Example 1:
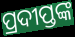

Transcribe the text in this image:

ପ୍ରଦୀପ୍ତଙ୍କ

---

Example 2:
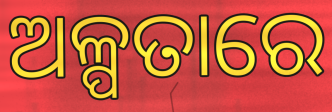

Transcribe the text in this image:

ଅଳ୍ପତାରେ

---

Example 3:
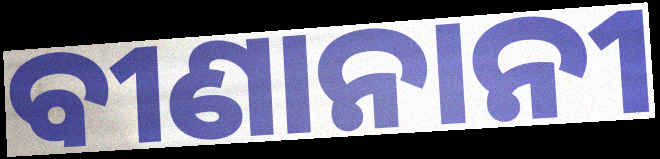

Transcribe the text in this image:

ବୀଣାନାନୀ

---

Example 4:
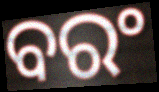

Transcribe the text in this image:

ବରଂ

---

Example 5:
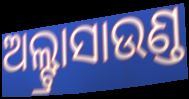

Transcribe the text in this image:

ଅଲ୍ଟ୍ରାସାଉଣ୍ଡ